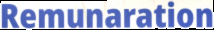
Remunaration